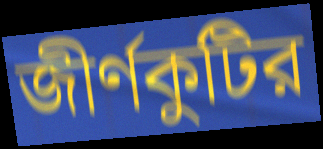
জীর্ণকুটির